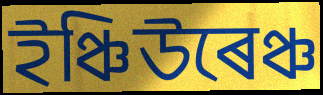
ইঞ্চিউৰেঞ্চ